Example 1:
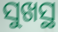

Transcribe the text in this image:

ସୁଖସ୍ଥ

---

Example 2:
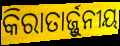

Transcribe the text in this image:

କିରାତାର୍ଜ୍ଜୁନୀୟ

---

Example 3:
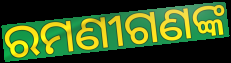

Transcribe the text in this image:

ରମଣୀଗଣଙ୍କ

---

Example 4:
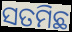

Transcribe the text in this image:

ସତମିଛ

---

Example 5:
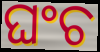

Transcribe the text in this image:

ଘଂଚ